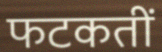
फटकतीं